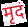
मृदं